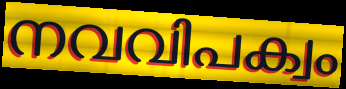
നവവിപക്വം